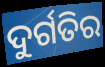
ଦୁର୍ଗତିର